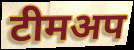
टीमअप